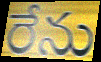
రేను